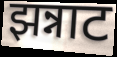
झन्नाट